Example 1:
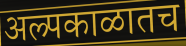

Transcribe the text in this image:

अल्पकाळातच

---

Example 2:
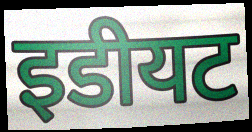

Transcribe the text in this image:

इडीयट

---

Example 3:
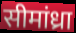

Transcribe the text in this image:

सीमांध्रा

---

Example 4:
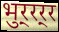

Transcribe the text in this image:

भुर्रर्र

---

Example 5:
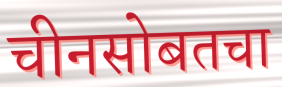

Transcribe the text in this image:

चीनसोबतचा